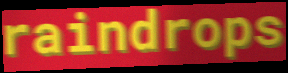
raindrops